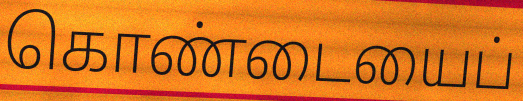
கொண்டையைப்